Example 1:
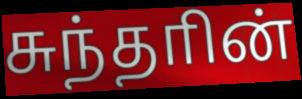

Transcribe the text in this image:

சுந்தரின்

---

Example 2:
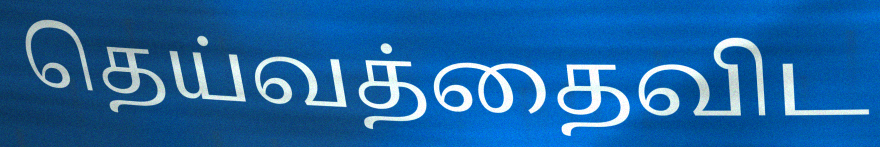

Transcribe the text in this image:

தெய்வத்தைவிட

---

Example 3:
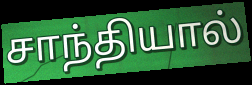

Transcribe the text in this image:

சாந்தியால்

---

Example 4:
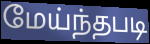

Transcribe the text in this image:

மேய்ந்தபடி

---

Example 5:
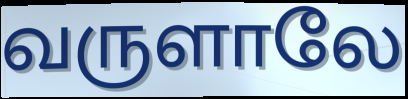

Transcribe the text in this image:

வருளாலே